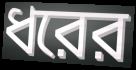
ধরের